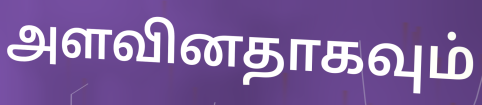
அளவினதாகவும்